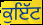
ਕੁਇੱਟ